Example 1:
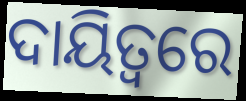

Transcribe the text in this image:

ଦାୟିତ୍ୱରେ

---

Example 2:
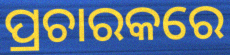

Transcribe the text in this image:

ପ୍ରଚାରକରେ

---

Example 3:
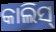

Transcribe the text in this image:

କାଲିସ୍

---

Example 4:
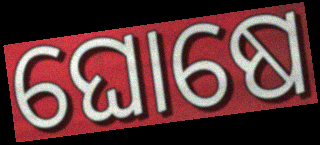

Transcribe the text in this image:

ଘୋଷେ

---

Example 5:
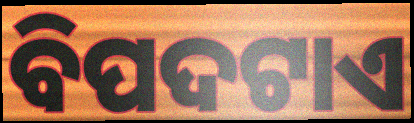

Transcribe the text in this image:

ବିପଦଟାଏ